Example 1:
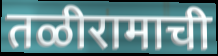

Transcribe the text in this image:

तळीरामाची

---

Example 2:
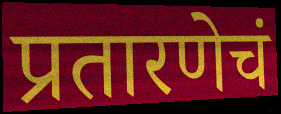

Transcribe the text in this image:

प्रतारणेचं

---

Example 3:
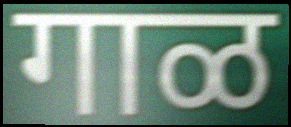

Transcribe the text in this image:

गाळ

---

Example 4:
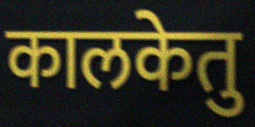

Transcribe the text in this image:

कालकेतु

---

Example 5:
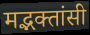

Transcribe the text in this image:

मद्भक्तांसी